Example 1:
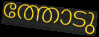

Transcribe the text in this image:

ത്തോടു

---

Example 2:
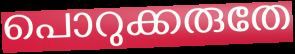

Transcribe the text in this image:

പൊറുക്കരുതേ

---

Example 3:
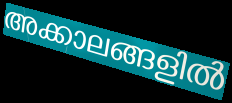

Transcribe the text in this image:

അക്കാലങ്ങളിൽ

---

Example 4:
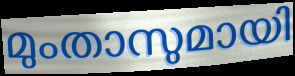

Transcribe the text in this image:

മുംതാസുമായി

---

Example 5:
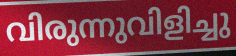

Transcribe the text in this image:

വിരുന്നുവിളിച്ചു